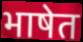
भाषेत